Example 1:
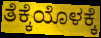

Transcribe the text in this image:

ತೆಕ್ಕೆಯೊಳಕ್ಕೆ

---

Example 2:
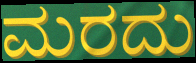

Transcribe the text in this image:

ಮರದು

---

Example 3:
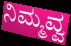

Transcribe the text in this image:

ನಿಮ್ಮವ್ವ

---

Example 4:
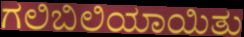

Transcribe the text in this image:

ಗಲಿಬಿಲಿಯಾಯಿತು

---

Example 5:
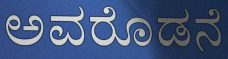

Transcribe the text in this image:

ಅವರೊಡನೆ